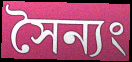
সৈন্যং